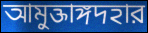
আমুক্তাঙ্গদহার